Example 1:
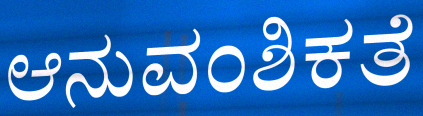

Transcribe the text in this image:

ಆನುವಂಶಿಕತೆ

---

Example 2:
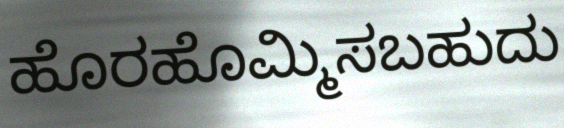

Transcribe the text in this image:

ಹೊರಹೊಮ್ಮಿಸಬಹುದು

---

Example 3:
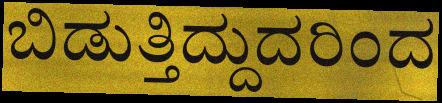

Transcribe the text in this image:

ಬಿಡುತ್ತಿದ್ದುದರಿಂದ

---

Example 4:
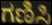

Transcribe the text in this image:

ಗಣಿಸಿ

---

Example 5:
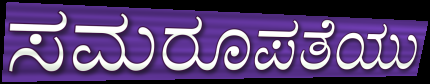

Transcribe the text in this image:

ಸಮರೂಪತೆಯು